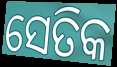
ସେତିକ